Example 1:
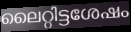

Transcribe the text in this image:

ലൈറ്റിട്ടശേഷം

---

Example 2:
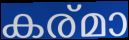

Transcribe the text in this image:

കര്മാ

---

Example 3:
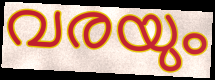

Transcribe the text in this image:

വരയും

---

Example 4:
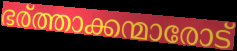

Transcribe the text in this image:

ഭര്ത്താക്കന്മാരോട്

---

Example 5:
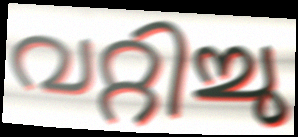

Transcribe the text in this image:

വറ്റിച്ചു